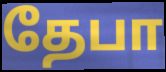
தேபா